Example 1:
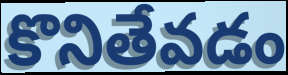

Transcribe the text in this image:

కొనితేవడం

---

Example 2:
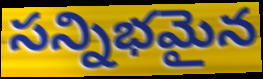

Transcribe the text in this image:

సన్నిభమైన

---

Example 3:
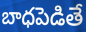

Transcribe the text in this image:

బాధపెడితే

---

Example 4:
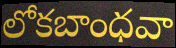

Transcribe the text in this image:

లోకబాంధవా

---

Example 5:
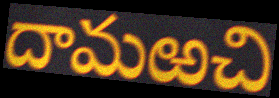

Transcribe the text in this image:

దామఱచి